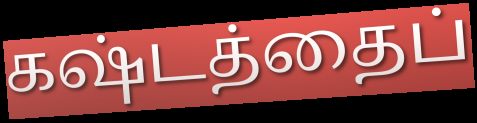
கஷ்டத்தைப்